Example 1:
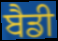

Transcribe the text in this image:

ਬੈਡੀ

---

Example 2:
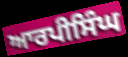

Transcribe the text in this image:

ਆਰਪੀਸਿੰਘ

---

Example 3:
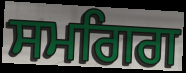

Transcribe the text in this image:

ਸਮਗਿਗ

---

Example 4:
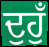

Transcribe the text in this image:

ਦੁਹੁਁ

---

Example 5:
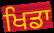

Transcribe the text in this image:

ਖਿਡਾ